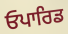
ਓਪਾਰਿਡ